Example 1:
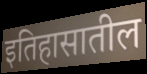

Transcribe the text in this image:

इतिहासातील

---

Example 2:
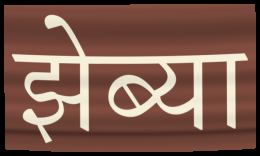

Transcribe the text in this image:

झेब्या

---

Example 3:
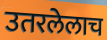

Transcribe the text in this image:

उतरलेलाच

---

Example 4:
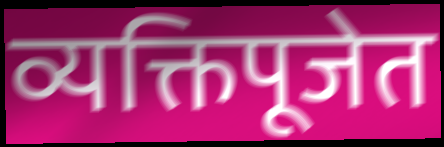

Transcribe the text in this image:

व्यक्तिपूजेत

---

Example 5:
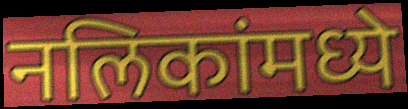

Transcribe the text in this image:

नलिकांमध्ये